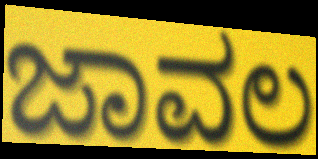
ಜಾವಲ